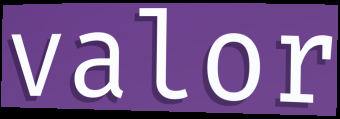
valor